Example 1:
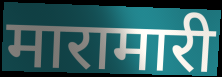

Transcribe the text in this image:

मारामारी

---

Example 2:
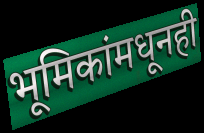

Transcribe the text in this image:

भूमिकांमधूनही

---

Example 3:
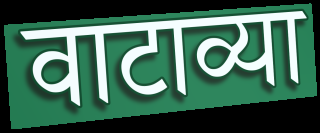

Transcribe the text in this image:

वाटाव्या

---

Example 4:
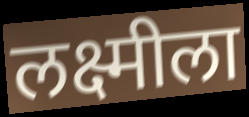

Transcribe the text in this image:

लक्ष्मीला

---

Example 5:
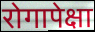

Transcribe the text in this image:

रोगापेक्षा